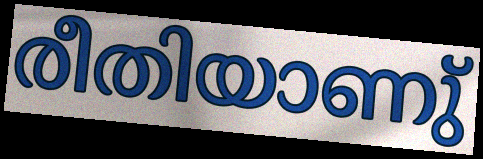
രീതിയാണു്